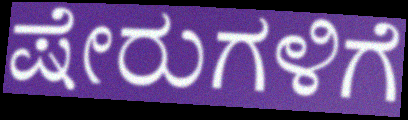
ಷೇರುಗಳಿಗೆ